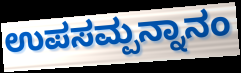
ಉಪಸಮ್ಪನ್ನಾನಂ